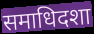
समाधिदशा